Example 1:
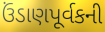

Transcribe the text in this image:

ઉંડાણપૂર્વકની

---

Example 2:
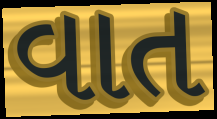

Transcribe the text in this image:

વાત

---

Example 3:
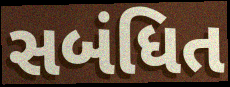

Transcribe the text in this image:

સબંધિત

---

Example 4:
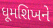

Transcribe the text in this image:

ધૂમશિખને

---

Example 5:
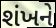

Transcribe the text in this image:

શંખને